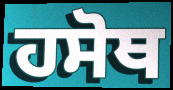
ਹਸੋਥ